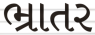
ભ્રાતર